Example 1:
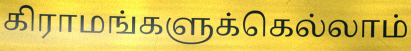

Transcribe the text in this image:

கிராமங்களுக்கெல்லாம்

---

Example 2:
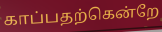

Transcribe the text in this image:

காப்பதற்கென்றே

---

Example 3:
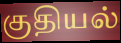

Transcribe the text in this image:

குதியல்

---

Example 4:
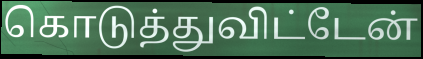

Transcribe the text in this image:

கொடுத்துவிட்டேன்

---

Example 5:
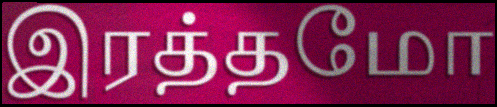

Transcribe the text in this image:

இரத்தமோ